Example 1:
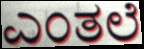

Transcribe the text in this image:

ಎಂತಲೆ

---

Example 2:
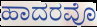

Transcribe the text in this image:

ಹಾದರವೊ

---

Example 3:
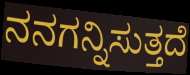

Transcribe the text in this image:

ನನಗನ್ನಿಸುತ್ತದೆ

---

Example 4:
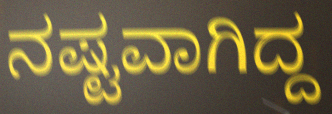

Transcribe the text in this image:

ನಷ್ಟವಾಗಿದ್ದ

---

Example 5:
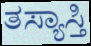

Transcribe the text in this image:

ತಸ್ಯಾಸ್ತಿ